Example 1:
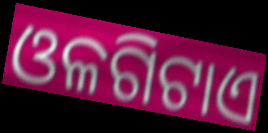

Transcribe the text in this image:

ଓଳଗିଟାଏ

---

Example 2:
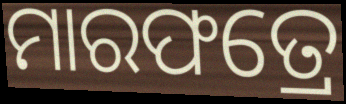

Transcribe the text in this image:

ମାରଫତ୍ରେ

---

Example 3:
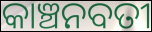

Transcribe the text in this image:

କାଞ୍ଚନବତୀ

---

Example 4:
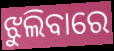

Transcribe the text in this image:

ଝୁଲିବାରେ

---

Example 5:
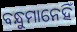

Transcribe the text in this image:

ବନ୍ଧୁମାନେହିଁ